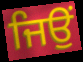
ਜਿਉਂ